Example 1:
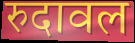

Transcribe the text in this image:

रुदावल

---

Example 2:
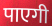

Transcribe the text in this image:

पाएगी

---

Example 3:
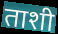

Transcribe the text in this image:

ताशी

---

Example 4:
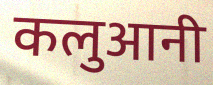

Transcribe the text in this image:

कलुआनी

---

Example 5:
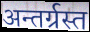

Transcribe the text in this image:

अन्तर्ग्रस्त